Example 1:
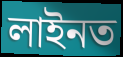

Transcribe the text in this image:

লাইনত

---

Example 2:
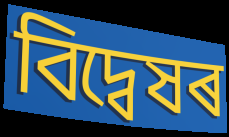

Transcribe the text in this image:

বিদ্বেষৰ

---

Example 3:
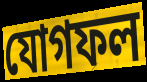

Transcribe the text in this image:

যোগফল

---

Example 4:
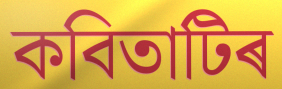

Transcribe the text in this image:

কবিতাটিৰ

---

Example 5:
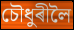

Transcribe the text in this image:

চৌধুৰীলৈ